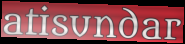
atisundar